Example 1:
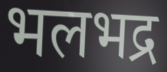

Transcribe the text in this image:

भलभद्र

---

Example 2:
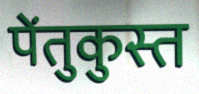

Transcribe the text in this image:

पेंतुकुस्त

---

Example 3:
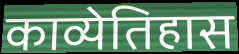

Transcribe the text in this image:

काव्येतिहास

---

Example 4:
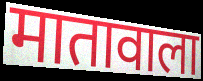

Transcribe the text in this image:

मातावाला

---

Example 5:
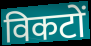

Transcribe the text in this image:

विकटों